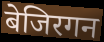
बेजिरगन